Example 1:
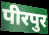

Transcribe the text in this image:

पीरपुर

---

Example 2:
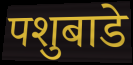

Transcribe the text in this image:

पशुबाडे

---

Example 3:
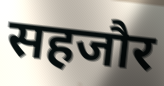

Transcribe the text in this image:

सहजौर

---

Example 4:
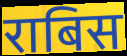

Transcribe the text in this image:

राबिस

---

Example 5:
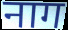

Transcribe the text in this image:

नाग